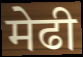
मेढी